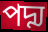
পদ্ম